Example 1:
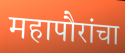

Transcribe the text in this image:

महापौरांचा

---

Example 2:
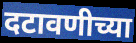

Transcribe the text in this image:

दटावणीच्या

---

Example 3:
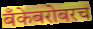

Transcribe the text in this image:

बँकेबरोबरच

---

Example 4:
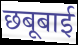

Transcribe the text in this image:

छबूबाई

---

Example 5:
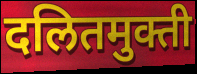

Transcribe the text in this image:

दलितमुक्ती